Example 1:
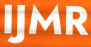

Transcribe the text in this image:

IJMR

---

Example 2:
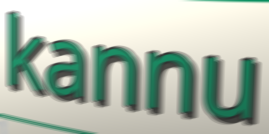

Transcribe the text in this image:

kannu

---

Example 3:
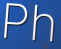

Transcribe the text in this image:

Ph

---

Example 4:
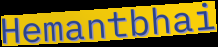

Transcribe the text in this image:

Hemantbhai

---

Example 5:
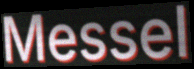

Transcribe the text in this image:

Messel